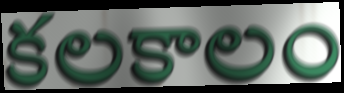
కలకాలం